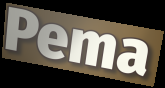
Pema